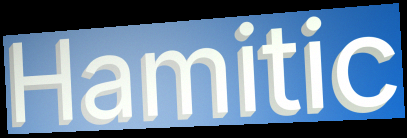
Hamitic